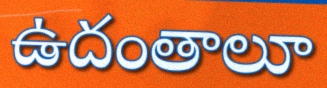
ఉదంతాలూ